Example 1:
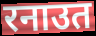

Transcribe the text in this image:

रनाउत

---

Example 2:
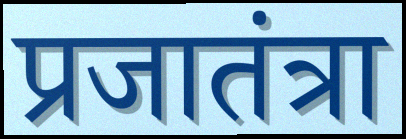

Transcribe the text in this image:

प्रजातंत्रा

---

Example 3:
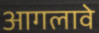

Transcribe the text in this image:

आगलावे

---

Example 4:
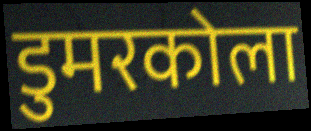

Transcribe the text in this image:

डुमरकोला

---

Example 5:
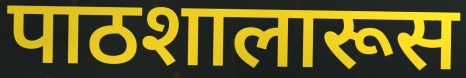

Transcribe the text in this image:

पाठशालारूस